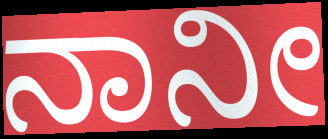
ನಾನೀ